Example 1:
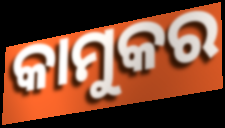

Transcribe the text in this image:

କାମୁକର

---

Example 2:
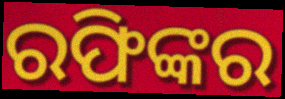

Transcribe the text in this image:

ରଫିଙ୍କର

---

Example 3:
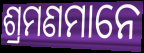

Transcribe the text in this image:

ଶ୍ରମଣମାନେ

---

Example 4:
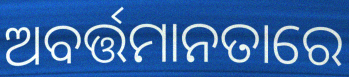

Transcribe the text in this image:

ଅବର୍ତ୍ତମାନତାରେ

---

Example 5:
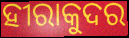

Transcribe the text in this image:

ହୀରାକୁଦର